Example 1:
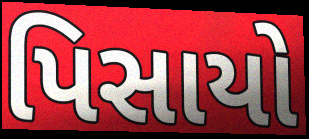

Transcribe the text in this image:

પિસાયો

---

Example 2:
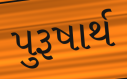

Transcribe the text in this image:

પુરૂષાર્થ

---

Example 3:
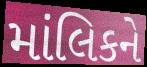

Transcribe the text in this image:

માંલિકને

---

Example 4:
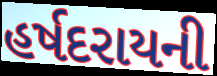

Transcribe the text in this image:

હર્ષદરાયની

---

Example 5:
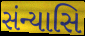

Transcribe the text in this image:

સંન્યાસિ